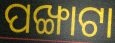
ପଙ୍ଖାଟା